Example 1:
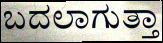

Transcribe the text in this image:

ಬದಲಾಗುತ್ತಾ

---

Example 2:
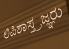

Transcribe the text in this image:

ಲಿಪಿಶಾಸ್ತ್ರಜ್ಞರು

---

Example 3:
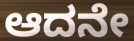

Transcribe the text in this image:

ಆದನೇ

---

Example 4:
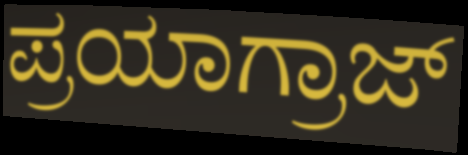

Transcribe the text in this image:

ಪ್ರಯಾಗ್ರಾಜ್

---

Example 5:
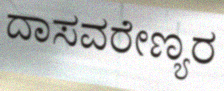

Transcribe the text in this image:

ದಾಸವರೇಣ್ಯರ